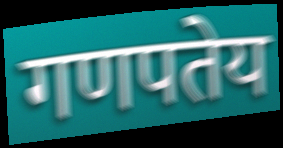
गणपतेय